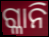
ଗ୍ଳାନି